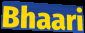
Bhaari